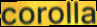
corolla